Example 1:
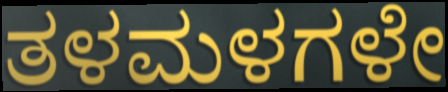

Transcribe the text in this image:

ತಳಮಳಗಳೇ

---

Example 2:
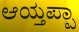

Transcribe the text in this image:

ಆಯ್ತಪ್ಪಾ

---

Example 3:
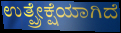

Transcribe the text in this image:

ಉತ್ಪ್ರೇಕ್ಷೆಯಾಗಿದೆ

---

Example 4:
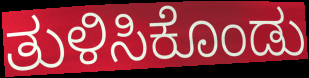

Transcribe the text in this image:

ತುಳಿಸಿಕೊಂಡು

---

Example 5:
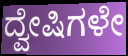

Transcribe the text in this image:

ದ್ವೇಷಿಗಳೇ